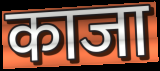
काजा